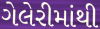
ગેલેરીમાંથી